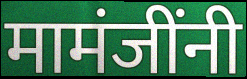
मामंजींनी